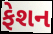
ફેશન